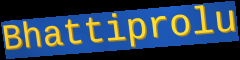
Bhattiprolu